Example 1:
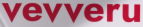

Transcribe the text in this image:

vevveru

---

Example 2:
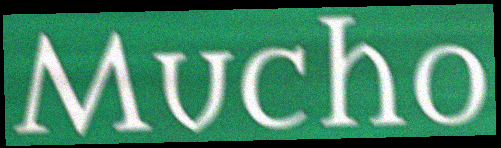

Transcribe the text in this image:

Mucho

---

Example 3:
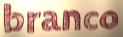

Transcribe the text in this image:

branco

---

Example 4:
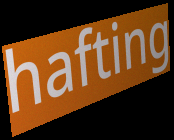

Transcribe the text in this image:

hafting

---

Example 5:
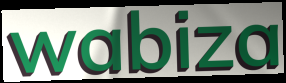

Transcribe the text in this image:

wabiza